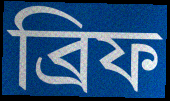
ব্রিফ